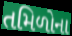
તમિળોના